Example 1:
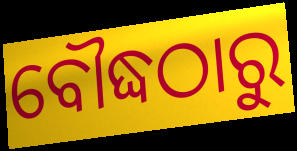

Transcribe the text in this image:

ବୌଦ୍ଧଠାରୁ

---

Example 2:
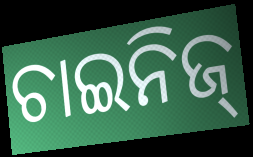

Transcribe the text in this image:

ଚାଇନିଜ୍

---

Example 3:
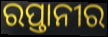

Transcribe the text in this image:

ରପ୍ତାନୀର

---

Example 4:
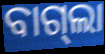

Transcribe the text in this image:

ବାଗ୍‍ଲା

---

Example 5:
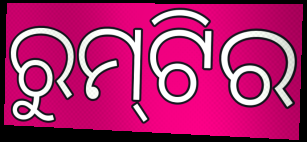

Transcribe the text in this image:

ରୁମ୍‌ଟିର